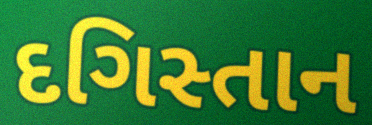
દગિસ્તાન